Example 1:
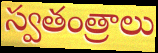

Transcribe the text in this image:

స్వతంత్రాలు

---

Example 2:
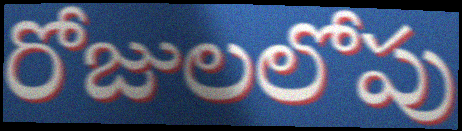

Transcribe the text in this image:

రోజులలోపు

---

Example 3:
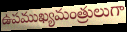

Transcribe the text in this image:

ఉపముఖ్యమంత్రులుగా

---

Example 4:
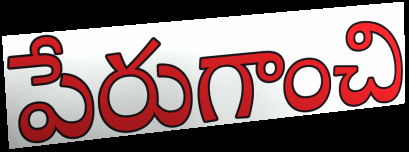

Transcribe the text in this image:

పేరుగాంచి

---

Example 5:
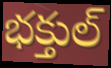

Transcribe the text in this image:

భక్తుల్